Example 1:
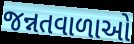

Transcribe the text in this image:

જન્નતવાળાઓ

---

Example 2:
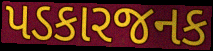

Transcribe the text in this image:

પડકારજનક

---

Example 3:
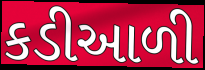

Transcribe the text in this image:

કડીઆળી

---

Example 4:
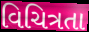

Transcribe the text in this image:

વિચિત્રતા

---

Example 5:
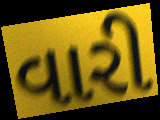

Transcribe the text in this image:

વારી